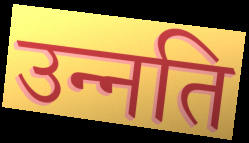
उन्‍नति